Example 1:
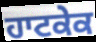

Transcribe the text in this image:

ਹਾਟਕੇਕ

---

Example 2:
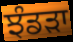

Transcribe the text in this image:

ਝੰਡੜਾ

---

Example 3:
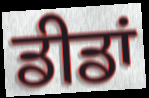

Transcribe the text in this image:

ਡੀਡਾਂ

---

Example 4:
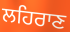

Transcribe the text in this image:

ਲਹਿਰਾਣ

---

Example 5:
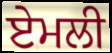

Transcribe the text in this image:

ਏਮਲੀ